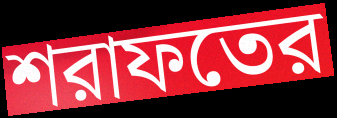
শরাফতের